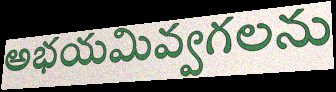
అభయమివ్వగలను